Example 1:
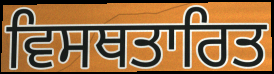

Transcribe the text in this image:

ਵਿਸਥਤਾਰਿਤ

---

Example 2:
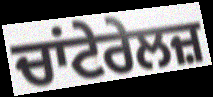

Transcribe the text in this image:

ਚਾਂਟੇਰੇਲਜ਼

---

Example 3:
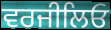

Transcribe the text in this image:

ਵਰਜੀਲਿਓ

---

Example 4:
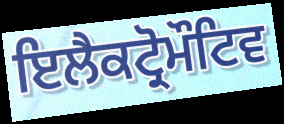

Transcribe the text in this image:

ਇਲੈਕਟ੍ਰੋਮੌਟਿਵ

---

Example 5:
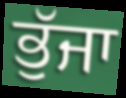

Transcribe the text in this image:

ਭੁੱਜਾ